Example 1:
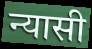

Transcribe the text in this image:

न्यासी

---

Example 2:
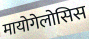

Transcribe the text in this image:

मायोगेलोसिस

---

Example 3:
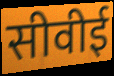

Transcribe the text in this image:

सीवीई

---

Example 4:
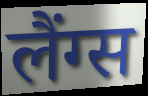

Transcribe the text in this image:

लैंग्स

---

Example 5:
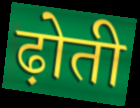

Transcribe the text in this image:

ढ़ोती